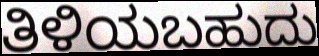
ತಿಳಿಯಬಹುದು